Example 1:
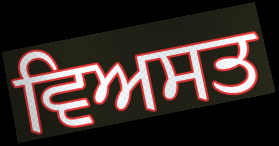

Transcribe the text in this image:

ਵਿਅਸਤ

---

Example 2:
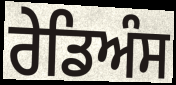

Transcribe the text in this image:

ਰੇਡਿਅੰਸ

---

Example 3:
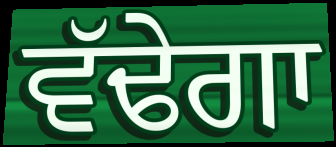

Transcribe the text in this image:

ਵੱਢੇਗਾ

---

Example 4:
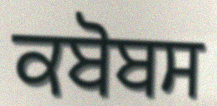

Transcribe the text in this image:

ਕਬੋਬਸ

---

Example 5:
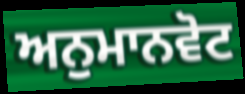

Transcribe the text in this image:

ਅਨੁਮਾਨਵੋਟ